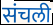
संचली